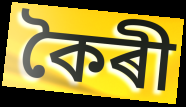
কৈৰী